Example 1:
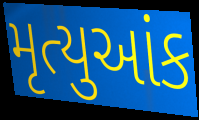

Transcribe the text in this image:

મૃત્યુઆંક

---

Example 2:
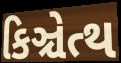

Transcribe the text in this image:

કિઞ્ચેત્થ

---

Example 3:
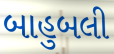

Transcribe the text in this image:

બાહુબલી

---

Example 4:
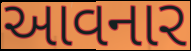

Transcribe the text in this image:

આવનાર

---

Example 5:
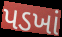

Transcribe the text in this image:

પડખાં